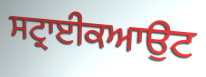
ਸਟ੍ਰਾਈਕਆਉਟ